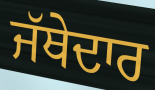
ਜੱਥੇਦਾਰ